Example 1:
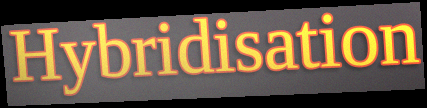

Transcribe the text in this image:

Hybridisation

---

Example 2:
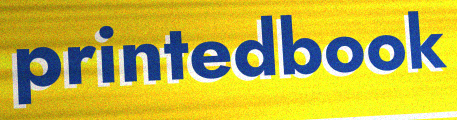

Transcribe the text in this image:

printedbook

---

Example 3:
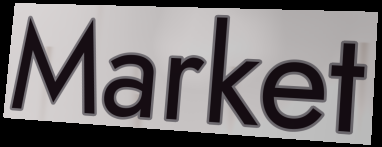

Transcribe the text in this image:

Market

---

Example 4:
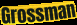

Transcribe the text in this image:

Grossman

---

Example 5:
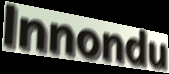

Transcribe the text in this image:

Innondu